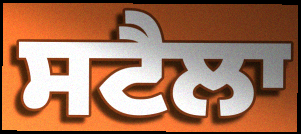
ਸਟੈਲਾ